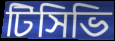
টিসিভি